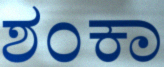
ಶಂಕಾ